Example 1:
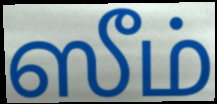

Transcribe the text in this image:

ஸீம்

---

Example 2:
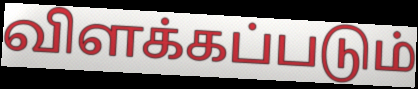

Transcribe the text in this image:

விளக்கப்படும்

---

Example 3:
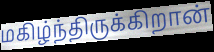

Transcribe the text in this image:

மகிழ்ந்திருக்கிறான்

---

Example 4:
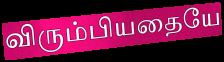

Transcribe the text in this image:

விரும்பியதையே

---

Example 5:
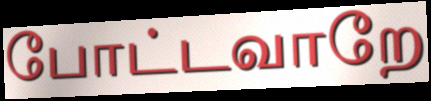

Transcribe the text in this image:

போட்டவாறே